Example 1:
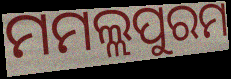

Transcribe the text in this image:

ମମଲ୍ଲପୁରମ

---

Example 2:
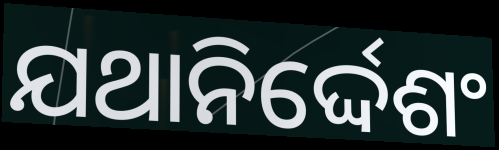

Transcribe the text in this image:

ଯଥାନିର୍ଦ୍ଦେଶଂ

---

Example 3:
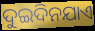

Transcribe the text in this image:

ଦୁଇଦିନଯାଏ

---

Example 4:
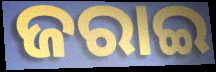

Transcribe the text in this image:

ଜରାଇ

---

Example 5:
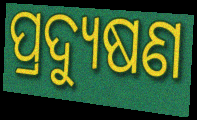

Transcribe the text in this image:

ପ୍ରଦ୍ଯୁଷଣ